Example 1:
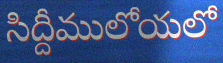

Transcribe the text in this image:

సిద్దీములోయలో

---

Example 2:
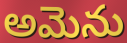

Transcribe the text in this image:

అమెను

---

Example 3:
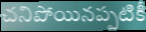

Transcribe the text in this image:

చనిపోయినప్పటికీ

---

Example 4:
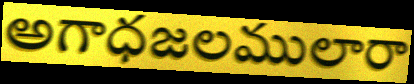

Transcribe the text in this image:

అగాధజలములారా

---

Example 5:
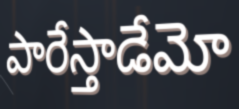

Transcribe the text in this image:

పారేస్తాడేమో